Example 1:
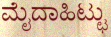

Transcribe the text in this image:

ಮೈದಾಹಿಟ್ಟು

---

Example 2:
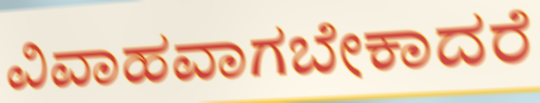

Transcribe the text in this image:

ವಿವಾಹವಾಗಬೇಕಾದರೆ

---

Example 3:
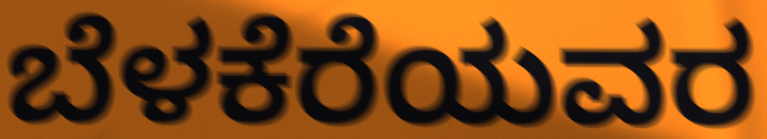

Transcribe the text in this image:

ಬೆಳಕೆರೆಯವರ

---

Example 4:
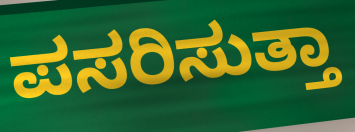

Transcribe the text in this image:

ಪಸರಿಸುತ್ತಾ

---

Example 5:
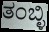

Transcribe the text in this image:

ತಂಬ್ಳಿ